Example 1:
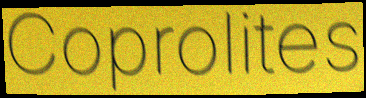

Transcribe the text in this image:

Coprolites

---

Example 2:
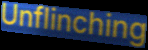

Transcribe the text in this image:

Unflinching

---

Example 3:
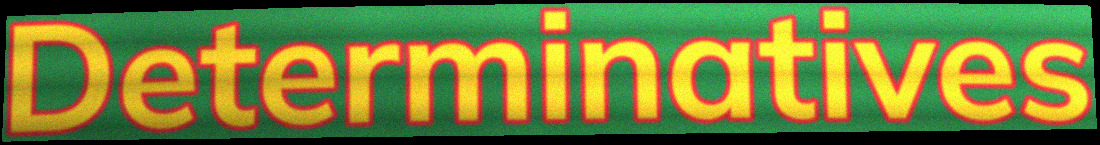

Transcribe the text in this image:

Determinatives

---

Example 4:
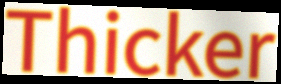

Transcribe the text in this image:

Thicker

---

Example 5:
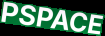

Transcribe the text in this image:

PSPACE